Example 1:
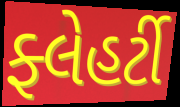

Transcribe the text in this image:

ફ્લેહર્ટી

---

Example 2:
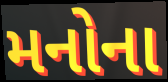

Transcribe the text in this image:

મનોના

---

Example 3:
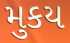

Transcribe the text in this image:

મુકય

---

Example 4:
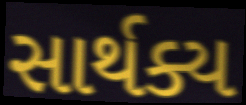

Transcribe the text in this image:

સાર્થક્ય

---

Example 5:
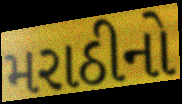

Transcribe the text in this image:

મરાઠીનો